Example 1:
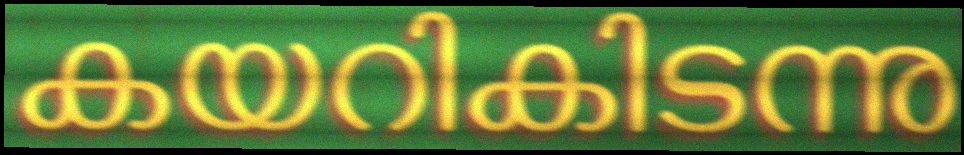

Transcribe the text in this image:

കയറികിടന്നു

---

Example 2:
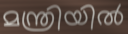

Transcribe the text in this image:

മന്ത്രിയിൽ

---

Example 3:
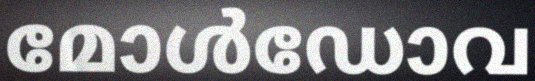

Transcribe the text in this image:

മോൾഡോവ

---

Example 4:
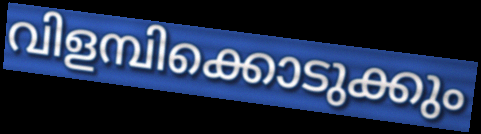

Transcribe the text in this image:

വിളമ്പിക്കൊടുക്കും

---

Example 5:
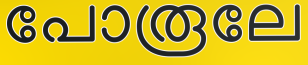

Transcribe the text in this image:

പോരൂലേ